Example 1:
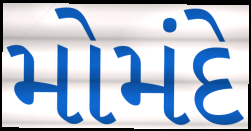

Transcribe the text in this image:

મોમંદે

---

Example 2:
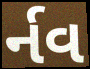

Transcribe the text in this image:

ર્નવ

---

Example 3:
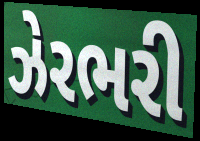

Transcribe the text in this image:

ઝેરભરી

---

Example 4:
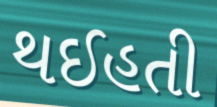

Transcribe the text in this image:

થઈહતી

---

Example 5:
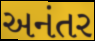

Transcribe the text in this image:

અનંતર